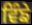
ਵਿੰਙੇ